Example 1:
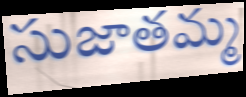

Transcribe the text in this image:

సుజాతమ్మ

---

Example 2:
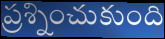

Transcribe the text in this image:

ప్రశ్నించుకుంది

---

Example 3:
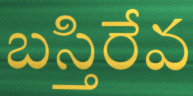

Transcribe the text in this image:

బస్తిరేవ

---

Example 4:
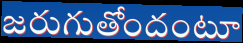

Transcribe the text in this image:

జరుగుతోందంటూ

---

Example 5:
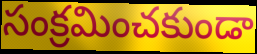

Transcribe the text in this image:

సంక్రమించకుండా